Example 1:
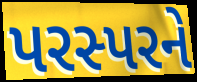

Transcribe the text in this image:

પરસ્પરને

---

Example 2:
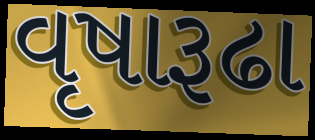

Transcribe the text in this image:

વૃષારૂઢા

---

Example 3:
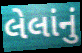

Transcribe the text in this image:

લેલાંનું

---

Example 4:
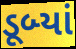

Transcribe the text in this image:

ડૂબ્યાં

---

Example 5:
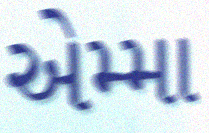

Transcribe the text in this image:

એમ્મા